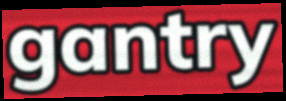
gantry